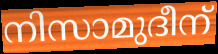
നിസാമുദീന്